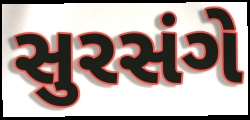
સુરસંગે